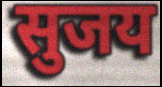
सुजय